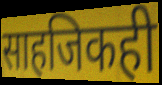
साहजिकही